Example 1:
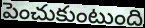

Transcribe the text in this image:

పెంచుకుంటుంది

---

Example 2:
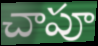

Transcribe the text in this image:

చాపూ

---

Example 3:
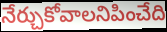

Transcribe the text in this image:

నేర్చుకోవాలనిపించేది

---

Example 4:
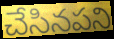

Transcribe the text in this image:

చేసినపని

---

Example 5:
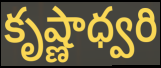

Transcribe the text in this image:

కృష్ణాధ్వరి